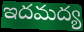
ఇదమద్య